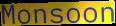
Monsoon